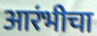
आरंभीचा